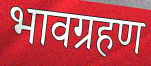
भावग्रहण